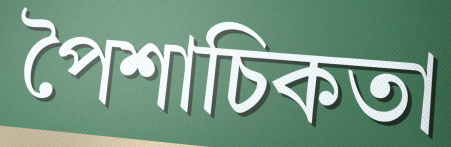
পৈশাচিকতা